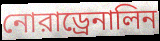
নোরাড্রেনালিন